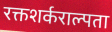
रक्तशर्कराल्पता